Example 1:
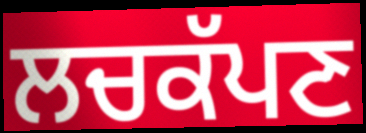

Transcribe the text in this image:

ਲਚਕੱਪਣ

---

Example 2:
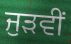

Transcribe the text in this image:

ਜੁੜਵੀਂ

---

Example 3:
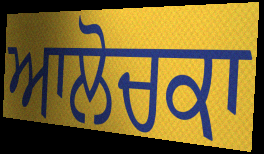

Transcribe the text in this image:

ਆਲੋਚਕਾ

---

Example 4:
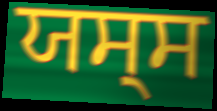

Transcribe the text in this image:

ਯਸ੍ਸ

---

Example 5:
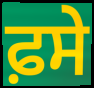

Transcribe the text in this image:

ਫ਼ਸੇ